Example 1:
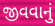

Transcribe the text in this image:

જીવવાનું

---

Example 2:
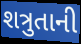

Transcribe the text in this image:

શત્રુતાની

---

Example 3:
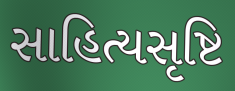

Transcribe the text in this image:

સાહિત્યસૃષ્ટિ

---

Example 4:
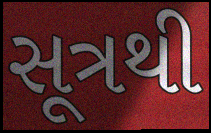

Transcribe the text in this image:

સૂત્રથી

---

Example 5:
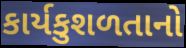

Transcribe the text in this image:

કાર્યકુશળતાનો